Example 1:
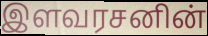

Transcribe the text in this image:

இளவரசனின்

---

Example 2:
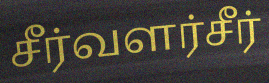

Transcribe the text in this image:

சீர்வளர்சீர்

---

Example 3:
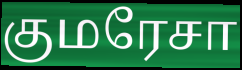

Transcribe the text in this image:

குமரேசா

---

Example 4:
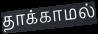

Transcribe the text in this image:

தாக்காமல்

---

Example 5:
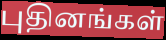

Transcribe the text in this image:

புதினங்கள்